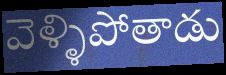
వెళ్ళిపోతాడు